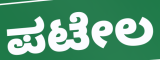
ಪಟೇಲ